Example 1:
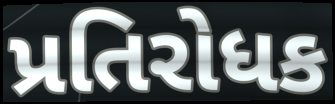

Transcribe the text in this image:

પ્રતિરોધક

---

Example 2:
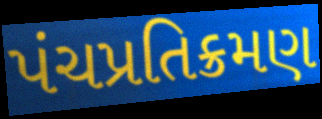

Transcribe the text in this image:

પંચપ્રતિક્રમણ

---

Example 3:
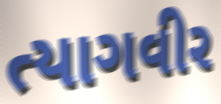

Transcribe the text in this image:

ત્યાગવીર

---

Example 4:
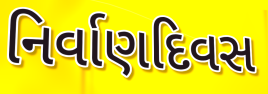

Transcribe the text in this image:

નિર્વાણદિવસ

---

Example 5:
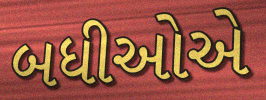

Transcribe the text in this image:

બધીઓએ